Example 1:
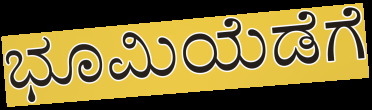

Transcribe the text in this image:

ಭೂಮಿಯೆಡೆಗೆ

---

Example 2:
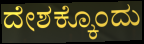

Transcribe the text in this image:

ದೇಶಕ್ಕೊಂದು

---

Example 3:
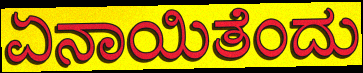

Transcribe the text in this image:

ಏನಾಯಿತೆಂದು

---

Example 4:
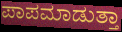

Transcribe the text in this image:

ಪಾಪಮಾಡುತ್ತಾ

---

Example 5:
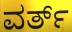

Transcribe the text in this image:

ವರ್ತ್